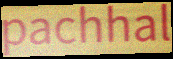
pachhal